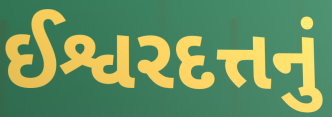
ઈશ્વરદત્તનું